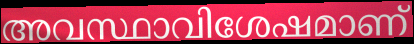
അവസ്ഥാവിശേഷമാണ്